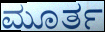
ಮೂರ್ತ